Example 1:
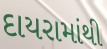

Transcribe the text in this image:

દાયરામાંથી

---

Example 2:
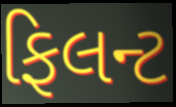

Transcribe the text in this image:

ફિલન્ટ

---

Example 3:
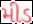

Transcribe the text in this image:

મીડ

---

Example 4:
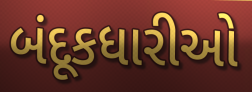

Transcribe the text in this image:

બંદૂકધારીઓ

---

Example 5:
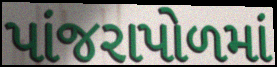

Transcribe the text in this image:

પાંજરાપોળમાં